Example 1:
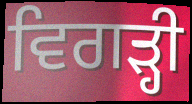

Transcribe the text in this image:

ਵਿਗੜ੍ਹੀ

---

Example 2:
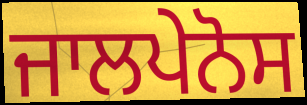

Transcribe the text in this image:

ਜਾਲਪੇਨੋਸ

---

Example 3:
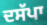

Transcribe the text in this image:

ਦਸੱਪਾ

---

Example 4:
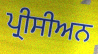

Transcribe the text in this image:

ਪ੍ਰੀਸੀਅਨ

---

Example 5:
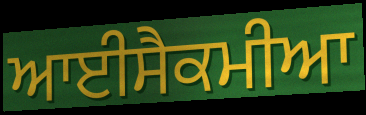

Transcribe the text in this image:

ਆਈਸੈਕਮੀਆ